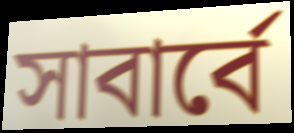
সাবার্বে